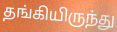
தங்கியிருந்து